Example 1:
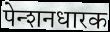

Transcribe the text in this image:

पेन्शनधारक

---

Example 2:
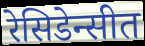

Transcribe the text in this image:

रेसिडेन्सीत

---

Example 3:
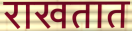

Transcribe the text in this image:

राखतात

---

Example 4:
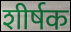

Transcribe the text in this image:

शीर्षक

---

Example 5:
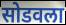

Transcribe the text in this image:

सोडवला